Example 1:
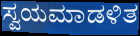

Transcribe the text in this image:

ಸ್ವಯಮಾಡಳಿತ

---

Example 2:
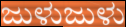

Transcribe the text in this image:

ಜುಳುಜುಳು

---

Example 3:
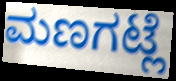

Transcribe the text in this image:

ಮಣಗಟ್ಲೆ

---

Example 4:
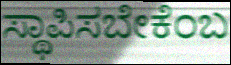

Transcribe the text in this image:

ಸ್ಥಾಪಿಸಬೇಕೆಂಬ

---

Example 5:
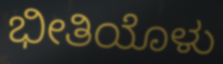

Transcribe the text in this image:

ಭೀತಿಯೊಳು